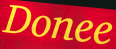
Donee